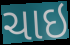
ચાઇ